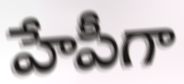
హేపీగా